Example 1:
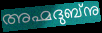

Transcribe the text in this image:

അഹ്മദുബ്നു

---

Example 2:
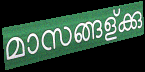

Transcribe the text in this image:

മാസങ്ങള്ക്കു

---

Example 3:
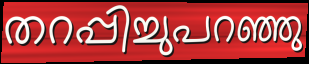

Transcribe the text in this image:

തറപ്പിച്ചുപറഞ്ഞു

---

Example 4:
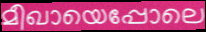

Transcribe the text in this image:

മീഖായെപ്പോലെ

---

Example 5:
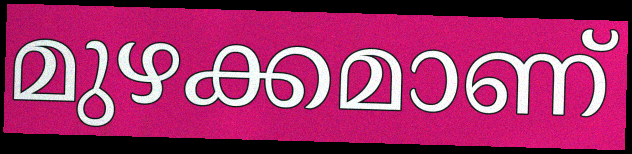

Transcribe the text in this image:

മുഴക്കമാണ്